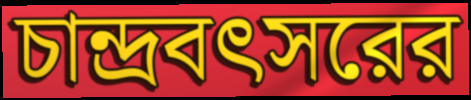
চান্দ্রবৎসরের